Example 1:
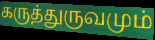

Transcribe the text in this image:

கருத்துருவமும்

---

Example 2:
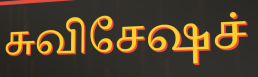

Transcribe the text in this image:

சுவிசேஷச்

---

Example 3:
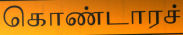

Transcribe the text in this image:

கொண்டாரச்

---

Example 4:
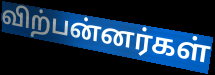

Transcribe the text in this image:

விற்பன்னர்கள்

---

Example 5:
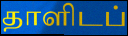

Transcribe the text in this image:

தாளிடப்